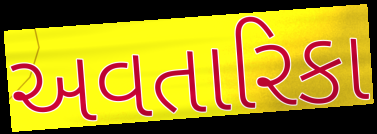
અવતારિકા